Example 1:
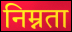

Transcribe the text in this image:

निम्नता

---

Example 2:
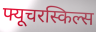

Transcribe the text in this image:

फ्यूचरस्किल्स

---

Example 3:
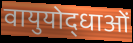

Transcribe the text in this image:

वायुयोद्धाओं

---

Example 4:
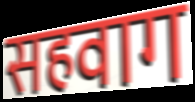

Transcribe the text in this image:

सहवाग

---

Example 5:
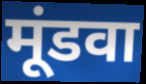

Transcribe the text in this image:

मूंडवा